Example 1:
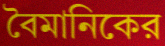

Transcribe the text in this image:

বৈমানিকের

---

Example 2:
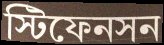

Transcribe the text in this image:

স্টিফেনসন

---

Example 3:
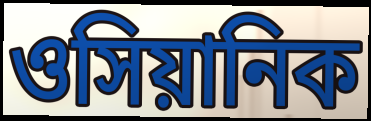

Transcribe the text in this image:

ওসিয়ানিক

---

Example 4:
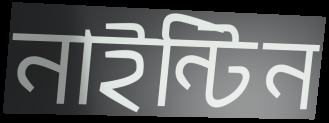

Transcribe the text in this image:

নাইন্টিন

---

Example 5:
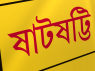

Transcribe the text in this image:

ষাটষট্টি